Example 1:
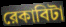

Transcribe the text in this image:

রেকাবিটা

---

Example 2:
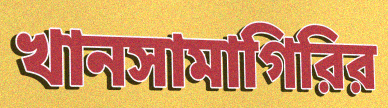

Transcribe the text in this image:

খানসামাগিরির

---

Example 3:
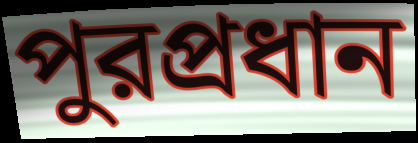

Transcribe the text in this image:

পুরপ্রধান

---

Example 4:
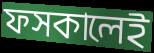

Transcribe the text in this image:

ফসকালেই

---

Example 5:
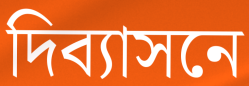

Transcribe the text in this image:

দিব্যাসনে